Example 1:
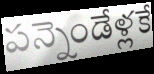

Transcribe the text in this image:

పన్నెండేళ్లకే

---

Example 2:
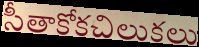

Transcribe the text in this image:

సీతాకోకచిలుకలు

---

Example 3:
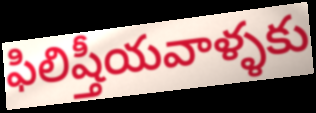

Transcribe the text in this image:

ఫిలిష్తీయవాళ్ళకు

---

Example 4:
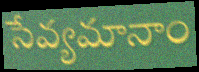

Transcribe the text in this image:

సేవ్యమానాం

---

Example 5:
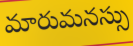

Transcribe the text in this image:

మారుమనస్సు